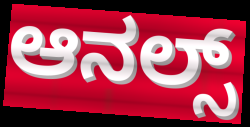
ಆನಲ್ಸ್